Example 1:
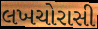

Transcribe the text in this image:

લખચોરાસી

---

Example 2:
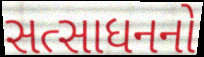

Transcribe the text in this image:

સત્સાધનનો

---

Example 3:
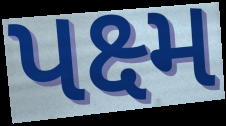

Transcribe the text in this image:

પક્ષ્મ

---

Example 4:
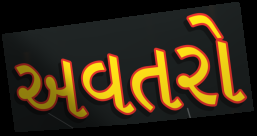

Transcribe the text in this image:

અવતરો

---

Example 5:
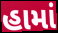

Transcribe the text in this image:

હામાં